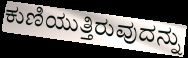
ಕುಣಿಯುತ್ತಿರುವುದನ್ನು